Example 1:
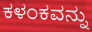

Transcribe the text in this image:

ಕಳಂಕವನ್ನು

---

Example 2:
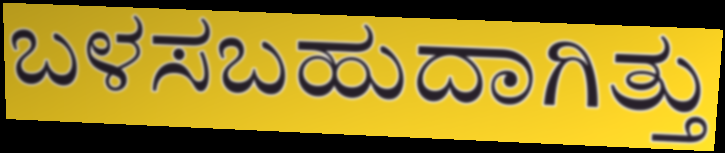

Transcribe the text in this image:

ಬಳಸಬಹುದಾಗಿತ್ತು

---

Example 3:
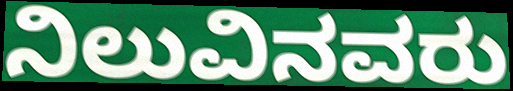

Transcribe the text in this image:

ನಿಲುವಿನವರು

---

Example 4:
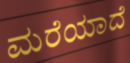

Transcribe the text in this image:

ಮರೆಯಾದೆ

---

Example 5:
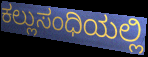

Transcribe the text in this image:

ಕಲ್ಲುಸಂಧಿಯಲ್ಲಿ